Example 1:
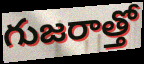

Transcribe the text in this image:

గుజరాత్తో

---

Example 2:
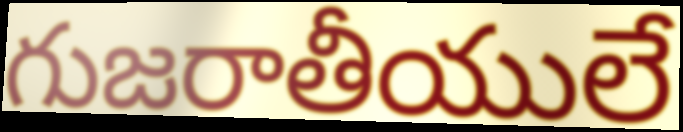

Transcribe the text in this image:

గుజరాతీయులే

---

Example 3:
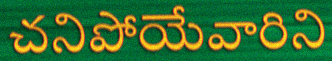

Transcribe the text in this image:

చనిపోయేవారిని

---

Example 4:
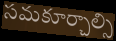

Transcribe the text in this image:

సమకూర్చాల్సి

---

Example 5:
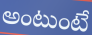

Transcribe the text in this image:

అంటుంటే